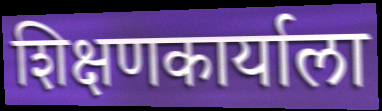
शिक्षणकार्याला